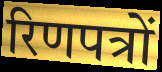
रिणपत्रों